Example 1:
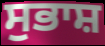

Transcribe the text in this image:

ਸੁਭਾਸ਼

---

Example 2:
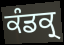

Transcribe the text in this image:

ਕੰਡਕ੍ਰ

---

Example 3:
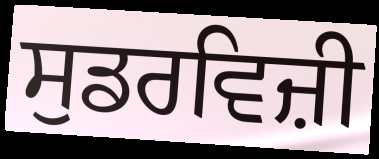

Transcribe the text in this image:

ਸੁਡਰਵਿਜ਼ੀ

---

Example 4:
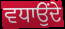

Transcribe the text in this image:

ਵਧਾਉੁਂਦੇ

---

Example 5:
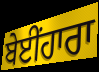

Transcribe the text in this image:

ਬੇਈਂਹਾਰਾ